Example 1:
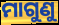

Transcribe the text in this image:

ମାଗୁଣୁ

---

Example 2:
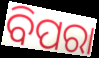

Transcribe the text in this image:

ବିପରା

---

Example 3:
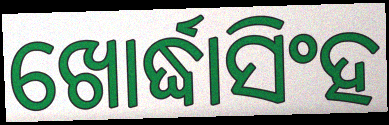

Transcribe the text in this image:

ଖୋର୍ଦ୍ଧାସିଂହ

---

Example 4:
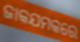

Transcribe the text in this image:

ଜାକଯମକରେ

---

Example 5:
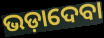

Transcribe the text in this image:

ଭଡ଼ାଦେବା